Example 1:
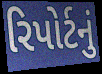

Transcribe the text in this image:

રિપોર્ટનું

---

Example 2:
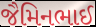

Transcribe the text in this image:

જૈમિનભાઈ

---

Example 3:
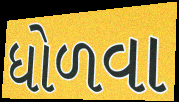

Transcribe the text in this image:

ધોળવા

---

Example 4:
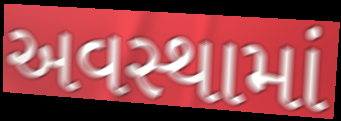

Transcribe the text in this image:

અવસ્થામાં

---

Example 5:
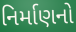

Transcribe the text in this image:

નિર્માણનો